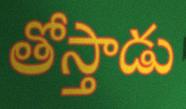
తోస్తాడు